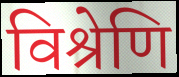
विश्रेणि